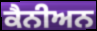
ਕੈਨੀਅਨ